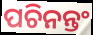
ପଚିନନ୍ତଂ